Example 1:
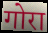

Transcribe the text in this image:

गोरा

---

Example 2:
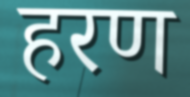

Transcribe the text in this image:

हरण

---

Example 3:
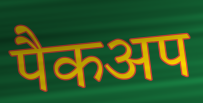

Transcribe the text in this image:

पैकअप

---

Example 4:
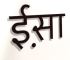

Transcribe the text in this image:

ई़सा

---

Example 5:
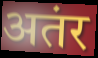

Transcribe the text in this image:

अतंर